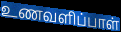
உணவளிப்பாள்